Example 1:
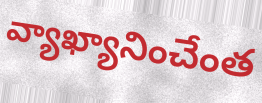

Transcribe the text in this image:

వ్యాఖ్యానించేంత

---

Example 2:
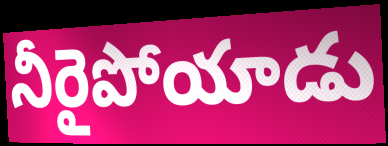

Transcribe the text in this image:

నీరైపోయాడు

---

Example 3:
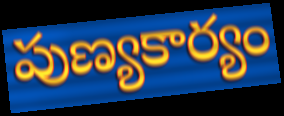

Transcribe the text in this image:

పుణ్యకార్యం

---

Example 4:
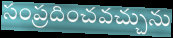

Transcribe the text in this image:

సంప్రదించవచ్చును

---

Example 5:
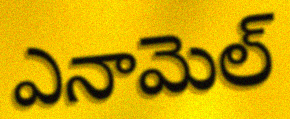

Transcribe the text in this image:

ఎనామెల్